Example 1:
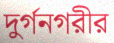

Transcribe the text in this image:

দুর্গনগরীর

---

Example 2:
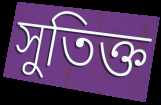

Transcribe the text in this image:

সুতিক্ত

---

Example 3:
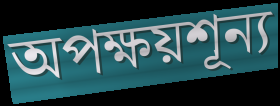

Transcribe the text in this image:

অপক্ষয়শূন্য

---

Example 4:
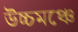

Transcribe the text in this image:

উচ্চমঞ্চে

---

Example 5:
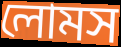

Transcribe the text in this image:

লোমস